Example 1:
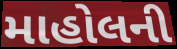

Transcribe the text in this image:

માહોલની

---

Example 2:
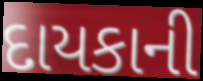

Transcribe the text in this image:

દાયકાની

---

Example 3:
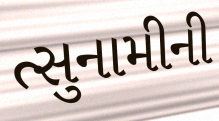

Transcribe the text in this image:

ત્સુનામીની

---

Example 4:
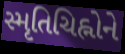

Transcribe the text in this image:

સ્મૃતિચિહ્નોને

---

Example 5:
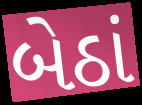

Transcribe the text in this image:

બેઠાં